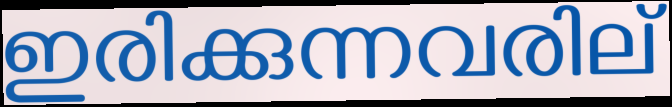
ഇരിക്കുന്നവരില്